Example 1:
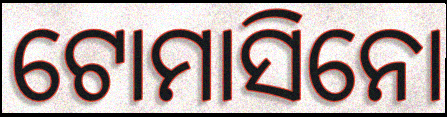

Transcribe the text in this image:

ଟୋମାସିନୋ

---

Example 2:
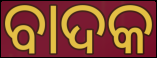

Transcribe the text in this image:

ବାଦକ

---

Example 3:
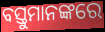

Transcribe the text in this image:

ବସ୍ତୁମାନଙ୍କରେ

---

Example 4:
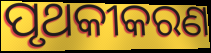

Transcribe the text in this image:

ପୃଥକୀକରଣ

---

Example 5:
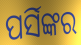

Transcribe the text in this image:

ପର୍ସିଙ୍କର